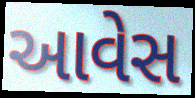
આવેસ